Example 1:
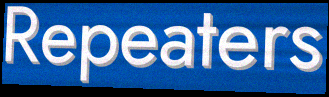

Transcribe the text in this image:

Repeaters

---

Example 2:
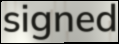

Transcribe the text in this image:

signed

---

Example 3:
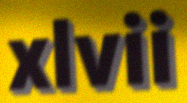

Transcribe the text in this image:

xlvii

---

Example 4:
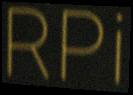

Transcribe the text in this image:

RPi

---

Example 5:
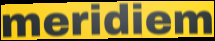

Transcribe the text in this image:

meridiem